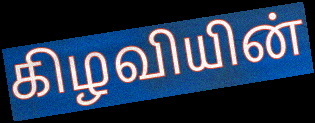
கிழவியின்